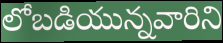
లోబడియున్నవారిని